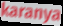
karanya